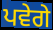
ਪਵੇਗੇ